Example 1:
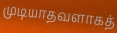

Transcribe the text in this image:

முடியாதவளாகத்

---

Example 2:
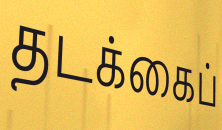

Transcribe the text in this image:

தடக்கைப்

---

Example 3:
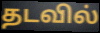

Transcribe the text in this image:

தடவில்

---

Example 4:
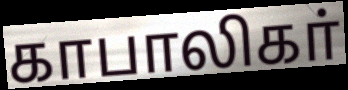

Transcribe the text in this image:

காபாலிகர்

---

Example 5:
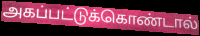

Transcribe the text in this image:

அகப்பட்டுக்கொண்டால்